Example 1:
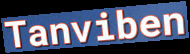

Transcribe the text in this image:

Tanviben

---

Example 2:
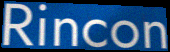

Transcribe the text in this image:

Rincon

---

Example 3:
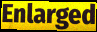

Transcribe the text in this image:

Enlarged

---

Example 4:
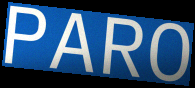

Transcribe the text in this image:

PARO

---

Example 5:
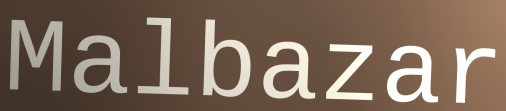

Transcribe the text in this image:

Malbazar